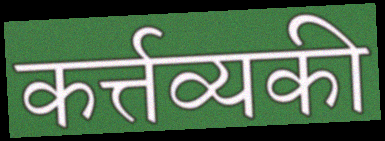
कर्त्तव्यकी